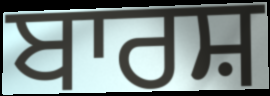
ਬਾਰਸ਼